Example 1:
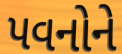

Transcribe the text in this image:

પવનોને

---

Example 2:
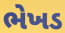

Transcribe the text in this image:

ભેખડ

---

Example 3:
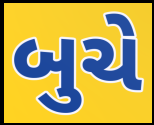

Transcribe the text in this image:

બુચે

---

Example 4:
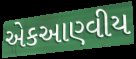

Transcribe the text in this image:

એકઆણ્વીય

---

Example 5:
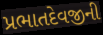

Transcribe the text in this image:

પ્રભાતદેવજીની